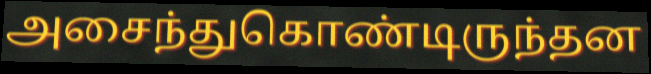
அசைந்துகொண்டிருந்தன